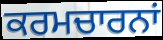
ਕਰਮਚਾਰਨਾਂ